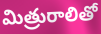
మిత్రురాలితో